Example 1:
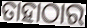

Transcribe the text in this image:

ତାହାଠାର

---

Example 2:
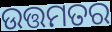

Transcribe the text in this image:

ଉତ୍ତମତର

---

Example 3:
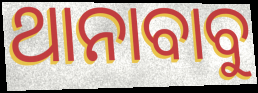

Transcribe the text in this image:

ଥାନାବାବୁ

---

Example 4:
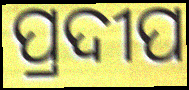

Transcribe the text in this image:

ପ୍ରଦୀପ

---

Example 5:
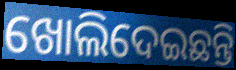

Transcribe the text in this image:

ଖୋଲିଦେଇଛନ୍ତି